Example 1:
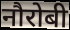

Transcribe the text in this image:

नौरोबी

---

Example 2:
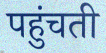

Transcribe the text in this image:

पहुंचती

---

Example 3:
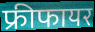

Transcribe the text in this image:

फ्रीफायर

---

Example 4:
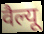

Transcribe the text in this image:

वैल्यू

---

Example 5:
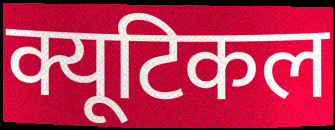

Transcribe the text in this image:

क्यूटिकल